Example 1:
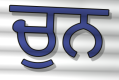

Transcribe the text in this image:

ਚੁਨ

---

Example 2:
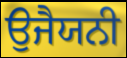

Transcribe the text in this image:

ਉਜੈਯਨੀ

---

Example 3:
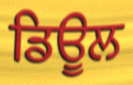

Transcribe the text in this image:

ਡਿਊਲ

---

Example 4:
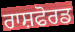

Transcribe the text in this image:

ਰਾਸ਼ਫੋਰਡ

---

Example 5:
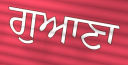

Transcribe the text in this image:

ਗੁਆਣਾ